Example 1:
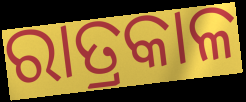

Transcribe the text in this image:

ରାତ୍ରକାଳ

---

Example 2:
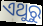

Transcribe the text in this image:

ଏଥୁରୁ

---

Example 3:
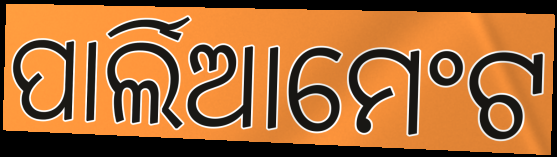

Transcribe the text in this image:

ପାର୍ଲିଆମେଂଟ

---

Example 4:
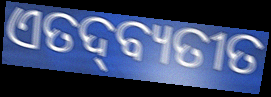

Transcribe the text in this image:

ଏତଦ୍‍ବ୍ୟତୀତ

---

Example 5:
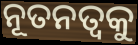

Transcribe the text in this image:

ନୂତନତ୍ବକୁ